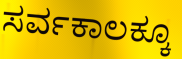
ಸರ್ವಕಾಲಕ್ಕೂ